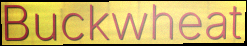
Buckwheat